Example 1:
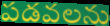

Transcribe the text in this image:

పడవలను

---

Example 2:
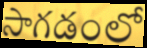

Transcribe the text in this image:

సాగడంలో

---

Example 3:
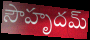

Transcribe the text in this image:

సౌహృదమ్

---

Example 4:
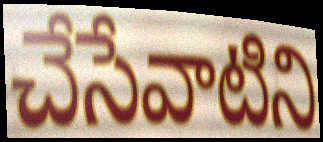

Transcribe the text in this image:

చేసేవాటిని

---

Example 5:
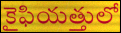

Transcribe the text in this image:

కైఫియత్తులో